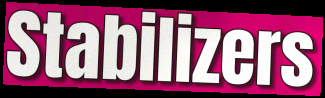
Stabilizers